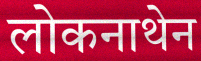
लोकनाथेन